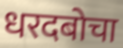
धरदबोचा